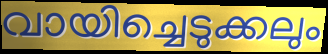
വായിച്ചെടുക്കലും